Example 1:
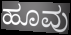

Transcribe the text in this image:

ಹೂವು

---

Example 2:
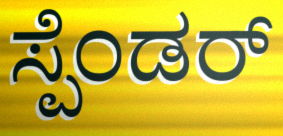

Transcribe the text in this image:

ಸ್ಪೆಂಡರ್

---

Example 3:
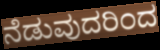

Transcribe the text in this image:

ನೆಡುವುದರಿಂದ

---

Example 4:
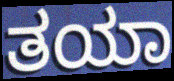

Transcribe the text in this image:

ತಯಾ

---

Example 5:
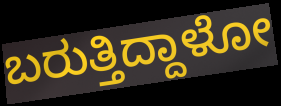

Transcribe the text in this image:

ಬರುತ್ತಿದ್ದಾಳೋ